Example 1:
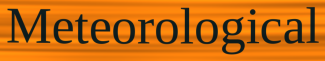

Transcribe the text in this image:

Meteorological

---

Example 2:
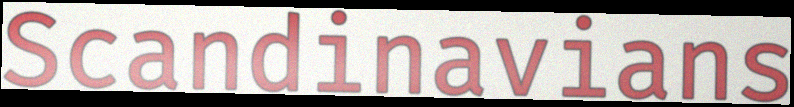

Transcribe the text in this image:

Scandinavians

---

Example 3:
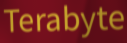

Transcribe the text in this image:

Terabyte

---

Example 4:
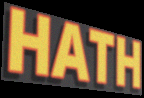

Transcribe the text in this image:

HATH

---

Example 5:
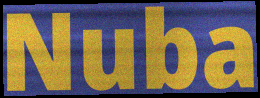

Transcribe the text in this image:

Nuba